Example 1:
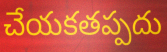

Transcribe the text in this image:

చేయకతప్పదు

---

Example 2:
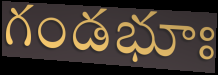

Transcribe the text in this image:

గండభూః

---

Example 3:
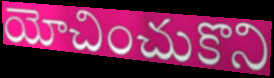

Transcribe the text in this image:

యోచించుకొని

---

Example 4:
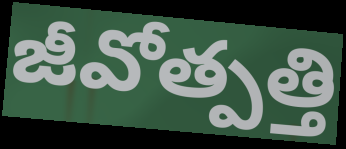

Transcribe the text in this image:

జీవోత్పత్తి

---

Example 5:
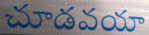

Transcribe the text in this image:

చూడవయా